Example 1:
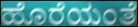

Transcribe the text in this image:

ಹೊರೆಯಂತೆ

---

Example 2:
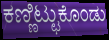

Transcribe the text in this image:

ಕಣ್ಣಿಟ್ಟುಕೊಂಡು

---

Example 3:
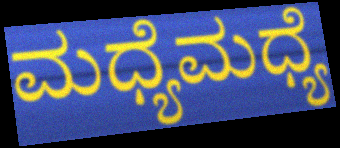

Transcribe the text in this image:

ಮಧ್ಯೆಮಧ್ಯೆ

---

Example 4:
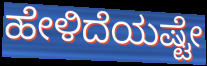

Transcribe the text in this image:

ಹೇಳಿದೆಯಷ್ಟೇ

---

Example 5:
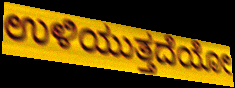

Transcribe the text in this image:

ಉಳಿಯುತ್ತದೆಯೋ